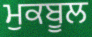
ਮੁਕਬੂਲ